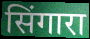
सिंगारा